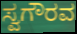
ಸ್ವಗೌರವ